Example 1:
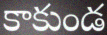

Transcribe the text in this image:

కాకుండ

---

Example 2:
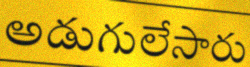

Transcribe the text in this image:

అడుగులేసారు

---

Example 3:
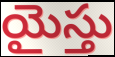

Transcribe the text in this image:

యైస్తు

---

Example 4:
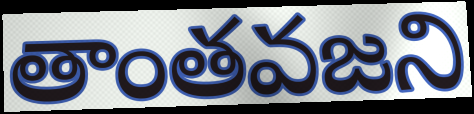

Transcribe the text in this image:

తాంతవజని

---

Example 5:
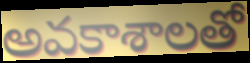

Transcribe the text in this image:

అవకాశాలతో